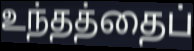
உந்தத்தைப்